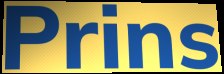
Prins